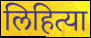
लिहित्या